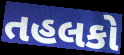
તહલકો